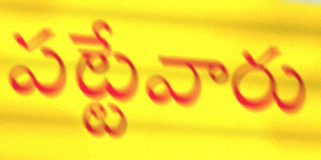
పట్టేవారు